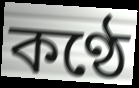
কণ্ঠে